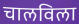
चालविला